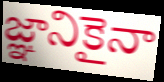
జ్ఞానికైనా